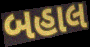
બહાલ